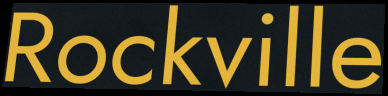
Rockville